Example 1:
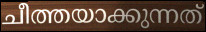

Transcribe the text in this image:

ചീത്തയാക്കുന്നത്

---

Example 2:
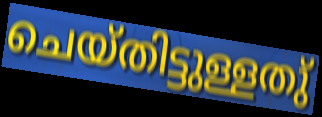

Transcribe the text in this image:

ചെയ്തിട്ടുള്ളതു്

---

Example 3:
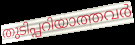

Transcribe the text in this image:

തുടിപ്പറിയാത്തവർ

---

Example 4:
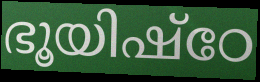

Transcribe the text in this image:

ഭൂയിഷ്ഠേ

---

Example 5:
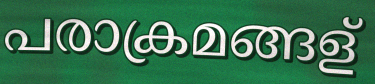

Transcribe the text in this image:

പരാക്രമങ്ങള്